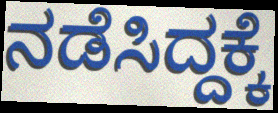
ನಡೆಸಿದ್ದಕ್ಕೆ